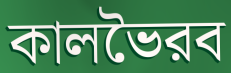
কালভৈরব